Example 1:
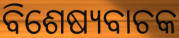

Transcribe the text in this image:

ବିଶେଷ୍ୟବାଚକ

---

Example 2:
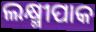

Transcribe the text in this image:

ଲକ୍ଷ୍ମୀପାକ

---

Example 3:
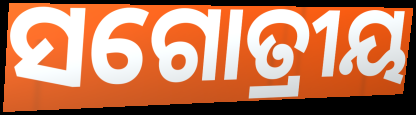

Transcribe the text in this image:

ସଗୋତ୍ରୀୟ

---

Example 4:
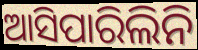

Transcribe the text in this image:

ଆସିପାରିଲିନି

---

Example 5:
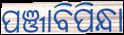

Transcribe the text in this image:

ପଞ୍ଜାବିପିନ୍ଧା